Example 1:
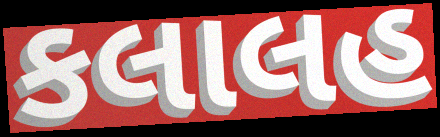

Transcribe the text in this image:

કલાલહ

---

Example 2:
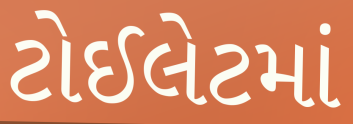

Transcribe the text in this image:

ટોઈલેટમાં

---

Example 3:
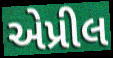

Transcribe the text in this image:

એપ્રીલ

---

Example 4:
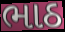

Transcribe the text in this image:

ભાઠ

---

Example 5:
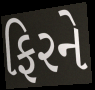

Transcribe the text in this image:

ફિરને